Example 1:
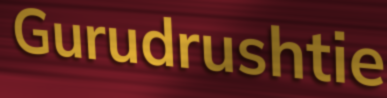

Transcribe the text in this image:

Gurudrushtie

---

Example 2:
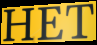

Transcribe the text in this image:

HET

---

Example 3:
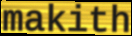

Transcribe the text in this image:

makith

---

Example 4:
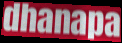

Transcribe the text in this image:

dhanapa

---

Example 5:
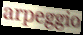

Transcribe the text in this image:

arpeggio